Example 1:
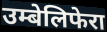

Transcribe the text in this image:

उम्बेलिफेरा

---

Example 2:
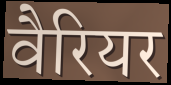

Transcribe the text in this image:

वैरियर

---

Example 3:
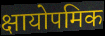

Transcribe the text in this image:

क्षायोपमिक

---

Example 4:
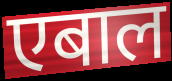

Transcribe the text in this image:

एबाल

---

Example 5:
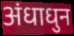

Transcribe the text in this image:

अंधाधुन